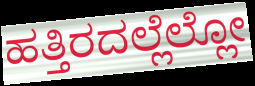
ಹತ್ತಿರದಲ್ಲೆಲ್ಲೋ